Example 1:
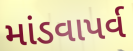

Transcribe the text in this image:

માંડવાપર્વ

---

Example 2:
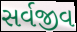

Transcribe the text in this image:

સર્વજીવ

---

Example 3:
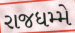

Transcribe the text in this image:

રાજધમ્મે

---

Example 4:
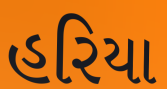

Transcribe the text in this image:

હરિયા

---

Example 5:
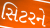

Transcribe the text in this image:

સિટરને